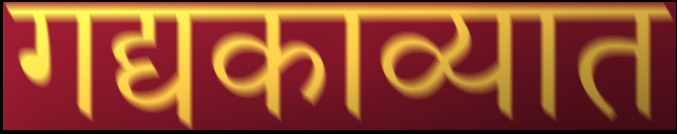
गद्यकाव्यात